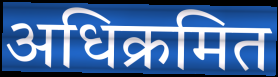
अधिक्रमित